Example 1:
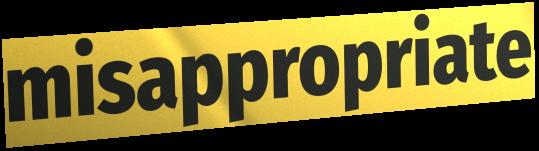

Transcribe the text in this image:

misappropriate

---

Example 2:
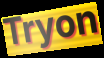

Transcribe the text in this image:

Tryon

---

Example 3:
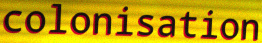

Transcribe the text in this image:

colonisation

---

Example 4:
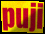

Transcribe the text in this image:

puji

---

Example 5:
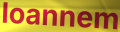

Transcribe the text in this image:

Ioannem